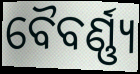
ବୈବର୍ଣ୍ଣ୍ୟ